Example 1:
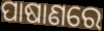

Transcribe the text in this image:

ପାଷାଣରେ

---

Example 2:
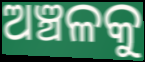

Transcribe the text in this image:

ଅଞ୍ଚଳକୁ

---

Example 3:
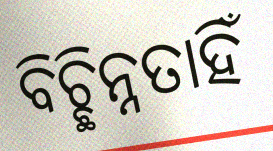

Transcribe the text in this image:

ବିଚ୍ଛିନ୍ନତାହିଁ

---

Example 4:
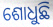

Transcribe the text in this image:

ଶୋଧୁଛି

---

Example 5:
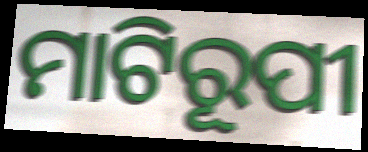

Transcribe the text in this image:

ମାଟିରୂପୀ